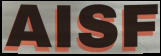
AISF